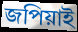
জপিয়াই